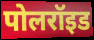
पोलरॉइड